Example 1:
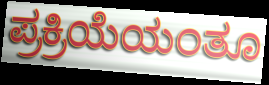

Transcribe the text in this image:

ಪ್ರಕ್ರಿಯೆಯಂತೂ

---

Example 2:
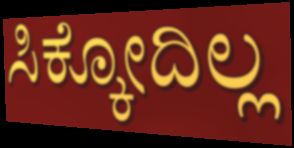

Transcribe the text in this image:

ಸಿಕ್ಕೋದಿಲ್ಲ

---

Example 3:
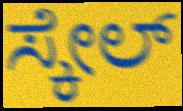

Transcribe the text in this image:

ಸ್ಕೇಲ್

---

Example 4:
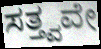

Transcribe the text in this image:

ಸತ್ತ್ವವೇ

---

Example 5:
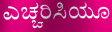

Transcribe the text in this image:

ಎಚ್ಚರಿಸಿಯೂ